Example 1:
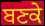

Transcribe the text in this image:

ਬਣਕੇ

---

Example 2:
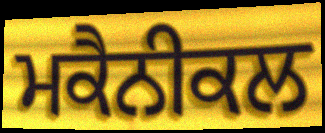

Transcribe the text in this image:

ਮਕੈਨੀਕਲ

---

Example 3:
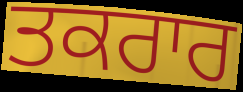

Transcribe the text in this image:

ਤਕਰਾਰ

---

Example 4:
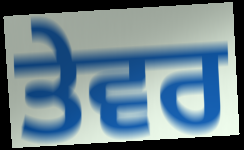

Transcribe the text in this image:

ਤੇਵਰ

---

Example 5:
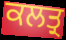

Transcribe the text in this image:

ਕਲਤ੍ਰ